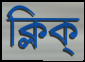
ক্লিক্